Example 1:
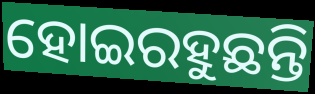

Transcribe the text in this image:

ହୋଇରହୁଛନ୍ତି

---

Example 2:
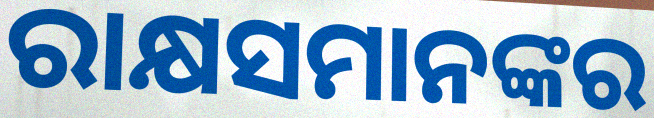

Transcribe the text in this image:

ରାକ୍ଷସମାନଙ୍କର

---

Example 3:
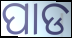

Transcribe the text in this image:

ପାଡ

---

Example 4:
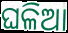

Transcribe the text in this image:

ଘଳିଆ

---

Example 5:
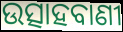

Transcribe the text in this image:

ଉତ୍ସାହବାଣୀ